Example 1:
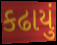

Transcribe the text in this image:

કઢાયું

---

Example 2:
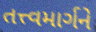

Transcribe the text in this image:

તત્ત્વમાર્ગને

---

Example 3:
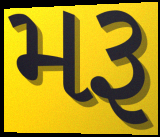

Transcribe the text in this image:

મરૂ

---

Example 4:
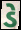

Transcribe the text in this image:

ડે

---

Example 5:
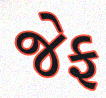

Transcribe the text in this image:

જેફ